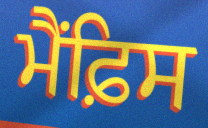
ਮੈਂਫ਼ਿਸ